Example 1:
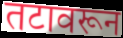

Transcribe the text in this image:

तटावरून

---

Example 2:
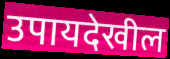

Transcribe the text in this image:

उपायदेखील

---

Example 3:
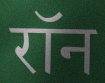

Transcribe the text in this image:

रॉन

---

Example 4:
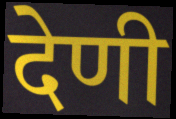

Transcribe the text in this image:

देणी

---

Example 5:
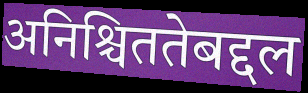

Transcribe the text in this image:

अनिश्चिततेबद्दल